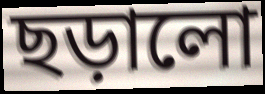
ছড়ালো